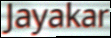
Jayakar